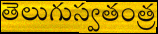
తెలుగుస్వతంత్ర